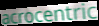
acrocentric